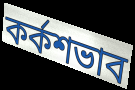
কর্কশভাব